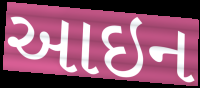
આઇન